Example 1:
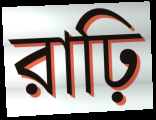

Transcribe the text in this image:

রাঢ়ি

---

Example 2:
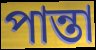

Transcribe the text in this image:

পান্তা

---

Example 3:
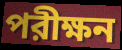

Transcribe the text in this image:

পরীক্ষন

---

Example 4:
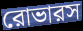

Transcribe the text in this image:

রোভারস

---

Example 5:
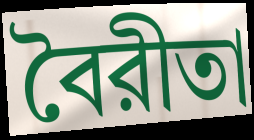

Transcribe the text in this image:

বৈরীতা